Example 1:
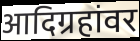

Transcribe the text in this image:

आदिग्रहांवर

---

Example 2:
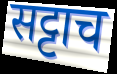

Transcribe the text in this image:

सट्टाच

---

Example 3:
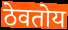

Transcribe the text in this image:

ठेवतोय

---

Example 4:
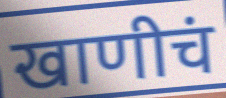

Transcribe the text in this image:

खाणीचं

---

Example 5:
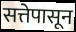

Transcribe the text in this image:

सत्तेपासून